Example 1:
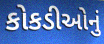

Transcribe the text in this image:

કોકડીઓનું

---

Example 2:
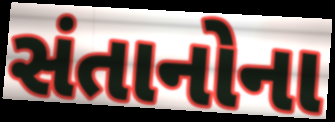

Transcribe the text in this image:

સંતાનોના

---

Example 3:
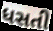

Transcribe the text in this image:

ધસતી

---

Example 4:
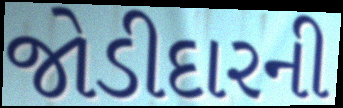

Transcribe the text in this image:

જોડીદારની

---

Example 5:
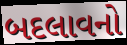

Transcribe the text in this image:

બદલાવનો